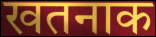
खतनाक